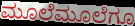
ಮೂಲೆಮೂಲೆಗೂ